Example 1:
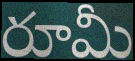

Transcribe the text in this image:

రూమీ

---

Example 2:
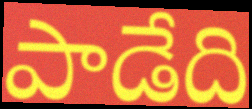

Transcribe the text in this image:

పాడేది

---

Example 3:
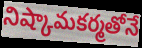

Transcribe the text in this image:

నిష్కామకర్మతోనే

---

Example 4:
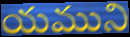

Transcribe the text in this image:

యముని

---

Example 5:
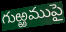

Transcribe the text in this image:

గుఱ్ఱముపై